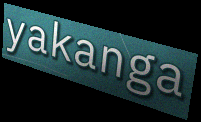
yakanga